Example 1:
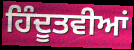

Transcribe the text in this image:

ਹਿੰਦੂਤਵੀਆਂ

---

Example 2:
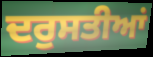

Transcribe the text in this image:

ਦਰੁਸਤੀਆਂ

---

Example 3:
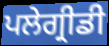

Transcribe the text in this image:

ਪਲੇਗ੍ਰੀਡੀ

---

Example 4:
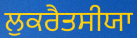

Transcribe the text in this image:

ਲੁਕਰੈਤਸੀਯਾ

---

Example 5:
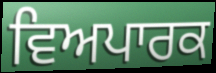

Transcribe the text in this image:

ਵਿਅਪਾਰਕ